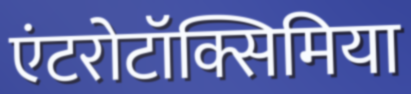
एंटरोटॉक्सिमिया